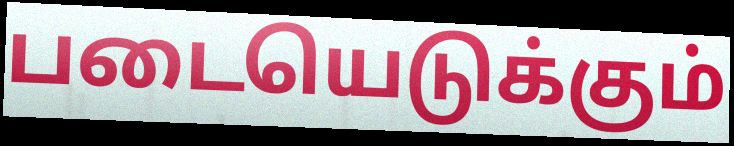
படையெடுக்கும்